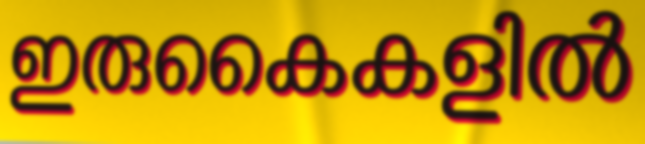
ഇരുകൈകളിൽ